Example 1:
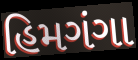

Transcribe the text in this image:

હિમગંગા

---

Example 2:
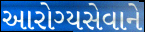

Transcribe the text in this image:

આરોગ્યસેવાને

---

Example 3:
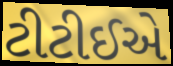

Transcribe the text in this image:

ટીટીઈએ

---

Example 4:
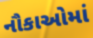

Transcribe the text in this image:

નૌકાઓમાં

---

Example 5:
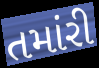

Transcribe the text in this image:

તમાંરી